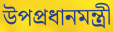
উপপ্রধানমন্ত্রী